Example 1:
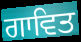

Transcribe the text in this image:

ਗਾਵਿਤ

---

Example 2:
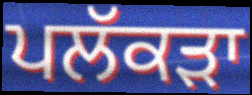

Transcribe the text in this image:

ਪਲੱਕੜਾ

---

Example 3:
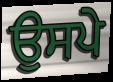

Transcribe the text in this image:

ਉਸਪੇ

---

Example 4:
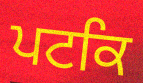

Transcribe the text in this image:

ਪਟਕਿ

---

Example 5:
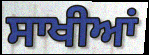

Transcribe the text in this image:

ਸਾਖੀਆਂ